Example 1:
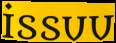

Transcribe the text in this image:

issuu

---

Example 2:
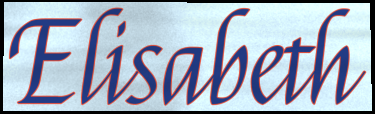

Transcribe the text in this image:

Elisabeth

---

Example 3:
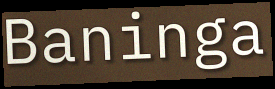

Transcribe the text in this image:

Baninga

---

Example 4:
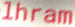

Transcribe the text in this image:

lhram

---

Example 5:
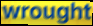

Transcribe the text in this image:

wrought